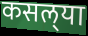
कसल्या